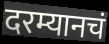
दरम्यानचं